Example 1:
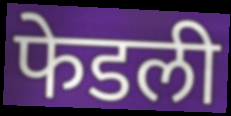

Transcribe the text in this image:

फेडली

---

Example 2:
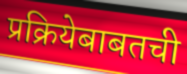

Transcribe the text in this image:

प्रक्रियेबाबतची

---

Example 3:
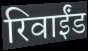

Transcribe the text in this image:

रिवाईंड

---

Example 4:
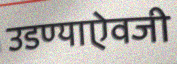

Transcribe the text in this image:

उडण्याऐवजी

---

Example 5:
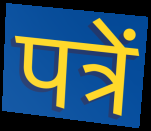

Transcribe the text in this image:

पत्रें